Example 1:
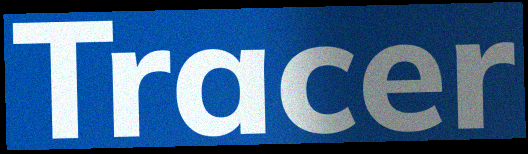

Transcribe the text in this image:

Tracer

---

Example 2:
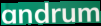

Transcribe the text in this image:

andrum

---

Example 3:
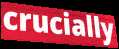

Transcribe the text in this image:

crucially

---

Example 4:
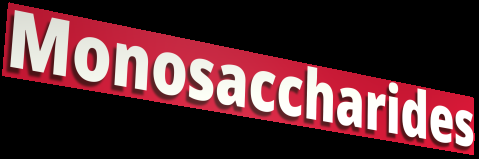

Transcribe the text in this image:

Monosaccharides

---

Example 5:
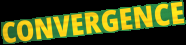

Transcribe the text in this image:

CONVERGENCE